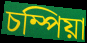
চম্পিয়া